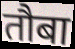
तौबा